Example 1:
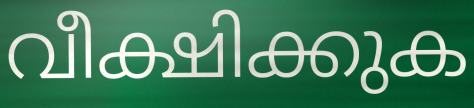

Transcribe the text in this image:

വീക്ഷിക്കുക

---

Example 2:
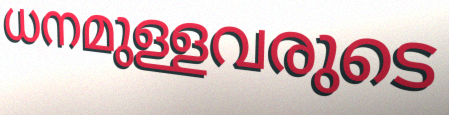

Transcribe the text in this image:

ധനമുള്ളവരുടെ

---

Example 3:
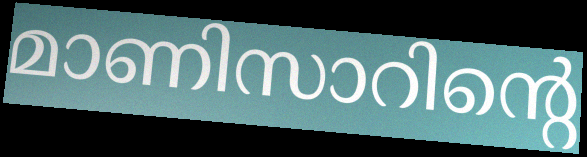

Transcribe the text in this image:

മാണിസാറിന്റെ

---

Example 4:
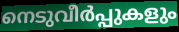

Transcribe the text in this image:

നെടുവീർപ്പുകളും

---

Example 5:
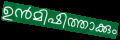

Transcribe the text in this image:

ഉൻമിഷിത്താക്കും